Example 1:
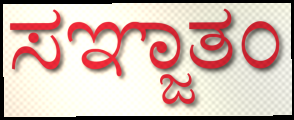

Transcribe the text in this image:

ಸಞ್ಜಾತಂ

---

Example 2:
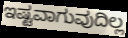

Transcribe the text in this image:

ಇಷ್ಟವಾಗುವುದಿಲ್ಲ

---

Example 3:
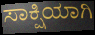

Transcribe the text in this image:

ಸಾಕ್ಷಿಯಾಗಿ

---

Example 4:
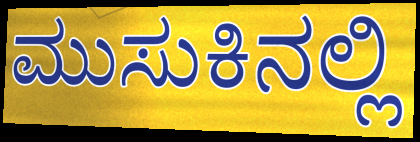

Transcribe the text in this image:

ಮುಸುಕಿನಲ್ಲಿ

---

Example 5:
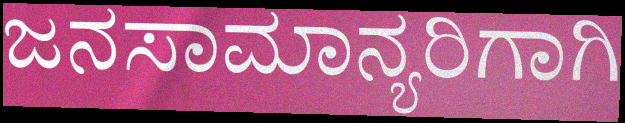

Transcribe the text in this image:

ಜನಸಾಮಾನ್ಯರಿಗಾಗಿ